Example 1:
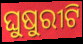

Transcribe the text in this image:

ଘୁଷୁରୀଟି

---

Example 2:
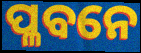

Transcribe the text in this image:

ପ୍ଳବନେ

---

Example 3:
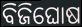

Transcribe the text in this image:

ବିଜିଘୋଷ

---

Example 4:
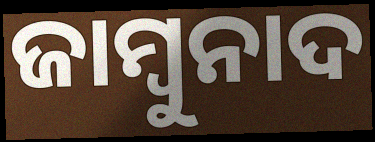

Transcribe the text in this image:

ଜାମ୍ବୁନାଦ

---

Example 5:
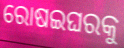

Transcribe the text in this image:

ରୋଷଇଘରକୁ